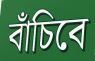
বাঁচিবে